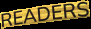
READERS